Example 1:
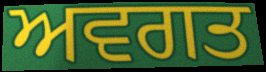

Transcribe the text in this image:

ਅਵਗਤ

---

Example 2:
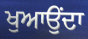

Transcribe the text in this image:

ਖੁਆਉਂਦਾ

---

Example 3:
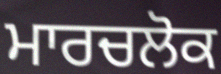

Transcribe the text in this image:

ਮਾਰਚਲੋਕ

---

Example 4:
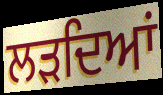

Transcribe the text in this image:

ਲੜਦਿਆਂ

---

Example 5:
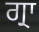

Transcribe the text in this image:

ਗ੍ਰਾ